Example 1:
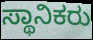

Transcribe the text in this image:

ಸ್ಥಾನಿಕರು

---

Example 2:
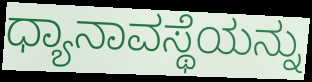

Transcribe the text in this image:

ಧ್ಯಾನಾವಸ್ಥೆಯನ್ನು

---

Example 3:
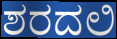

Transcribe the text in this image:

ಶರದಲಿ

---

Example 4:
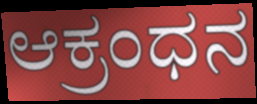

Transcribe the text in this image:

ಆಕ್ರಂಧನ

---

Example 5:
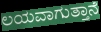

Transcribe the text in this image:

ಲಯವಾಗುತ್ತಾನೆ